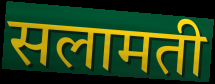
सलामती